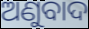
ଅଣୁବାଦ